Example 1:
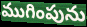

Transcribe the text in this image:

ముగింపును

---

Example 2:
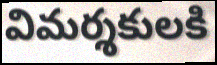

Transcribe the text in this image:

విమర్శకులకి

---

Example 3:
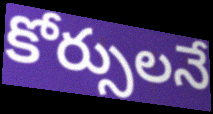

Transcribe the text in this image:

కోర్సులనే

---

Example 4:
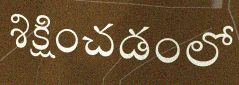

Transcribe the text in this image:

శిక్షించడంలో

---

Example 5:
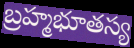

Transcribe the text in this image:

బ్రహ్మభూతస్య